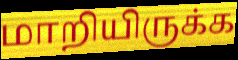
மாறியிருக்க